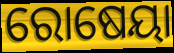
ରୋଷେୟା